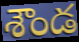
శౌండ